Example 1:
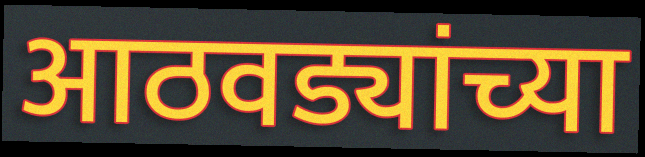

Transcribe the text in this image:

आठवड्यांच्या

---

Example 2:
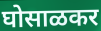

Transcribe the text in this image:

घोसाळकर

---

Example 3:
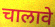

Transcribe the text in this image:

चालावे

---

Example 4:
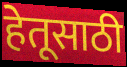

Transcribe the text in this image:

हेतूसाठी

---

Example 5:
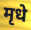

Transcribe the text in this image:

मृधे